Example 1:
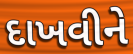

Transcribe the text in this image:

દાખવીને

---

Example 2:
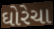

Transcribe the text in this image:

ઘોરેચા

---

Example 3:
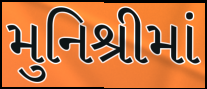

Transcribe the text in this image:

મુનિશ્રીમાં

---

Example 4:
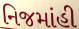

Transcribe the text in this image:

નિજમાંહી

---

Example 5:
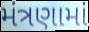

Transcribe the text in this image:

મંત્રણામાં